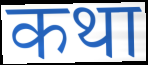
कथा